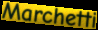
Marchetti